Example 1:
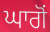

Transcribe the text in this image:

ਘਾਗੋਂ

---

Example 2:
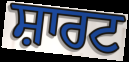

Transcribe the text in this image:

ਸ਼ਾਰਟ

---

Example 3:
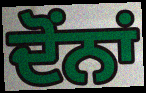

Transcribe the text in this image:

ਦੋਂਨਾਂ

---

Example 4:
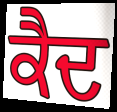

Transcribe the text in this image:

ਕੈਦ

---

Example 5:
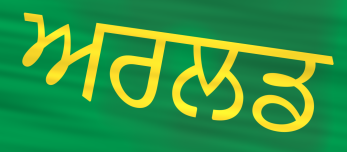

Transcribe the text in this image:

ਅਰਲਡ